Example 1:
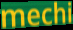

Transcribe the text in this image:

mechi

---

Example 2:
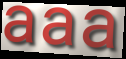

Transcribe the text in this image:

aaa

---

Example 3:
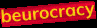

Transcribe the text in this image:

beurocracy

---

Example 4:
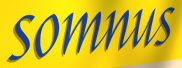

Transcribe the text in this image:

somnus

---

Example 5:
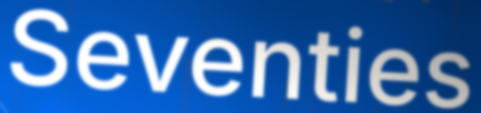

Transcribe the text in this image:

Seventies